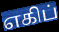
எகிப்